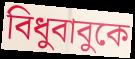
বিধুবাবুকে